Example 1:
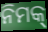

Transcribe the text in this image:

ନିମକ୍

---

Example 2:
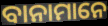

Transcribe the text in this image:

ବାନାମାନେ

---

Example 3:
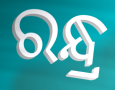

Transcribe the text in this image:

ରନ୍ଧ୍ର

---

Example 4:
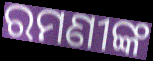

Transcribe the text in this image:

ରମଣୀଙ୍କ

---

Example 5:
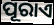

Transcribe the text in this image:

ପୂରାଏ